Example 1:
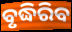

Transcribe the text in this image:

ବୃଦ୍ଧିରିବ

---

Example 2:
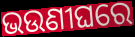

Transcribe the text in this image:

ଭଉଣୀଘରେ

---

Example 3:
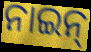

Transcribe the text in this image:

ନାଇନ୍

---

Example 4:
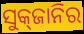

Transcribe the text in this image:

ସୁକ୍‌ଜାନିର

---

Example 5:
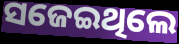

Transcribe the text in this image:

ସଜେଇଥିଲେ